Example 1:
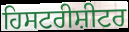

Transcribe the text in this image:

ਹਿਸਟਰੀਸ਼ੀਟਰ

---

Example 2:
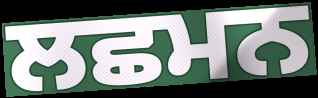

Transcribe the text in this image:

ਲਛਮਨ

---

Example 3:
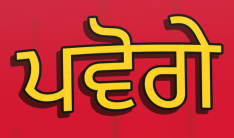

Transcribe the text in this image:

ਪਵੋਗੇ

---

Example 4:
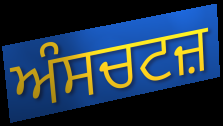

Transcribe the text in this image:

ਅੰਸਚਟਜ਼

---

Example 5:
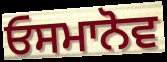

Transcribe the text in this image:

ਓਸਮਾਨੋਵ